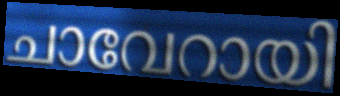
ചാവേറായി